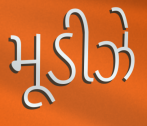
મૂડીઝે